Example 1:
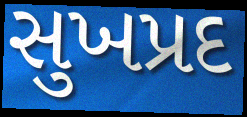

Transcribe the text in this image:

સુખપ્રદ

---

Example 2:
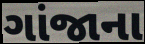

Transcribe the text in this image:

ગાંજાના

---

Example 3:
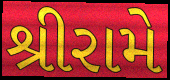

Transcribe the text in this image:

શ્રીરામે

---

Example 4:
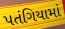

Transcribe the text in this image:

પતંગિયામાં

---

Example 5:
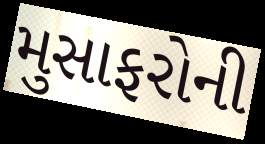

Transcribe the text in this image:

મુસાફરોની